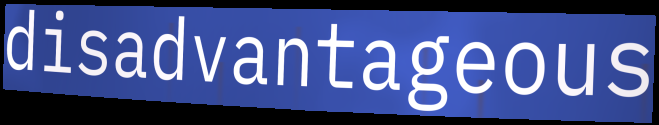
disadvantageous